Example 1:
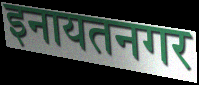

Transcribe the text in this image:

इनायतनगर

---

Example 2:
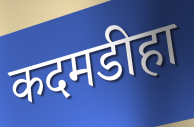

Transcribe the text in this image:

कदमडीहा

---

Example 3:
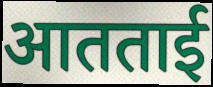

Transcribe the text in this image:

आतताई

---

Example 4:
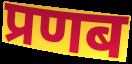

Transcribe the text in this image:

प्रणब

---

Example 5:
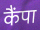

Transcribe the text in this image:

कैंपा